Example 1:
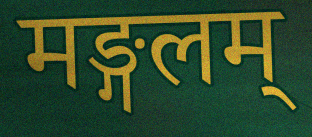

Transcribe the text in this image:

मङ्गलम्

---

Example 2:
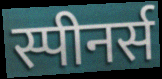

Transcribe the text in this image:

स्पीनर्स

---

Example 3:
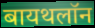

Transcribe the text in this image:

बायथलॉन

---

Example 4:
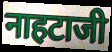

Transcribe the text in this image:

नाहटाजी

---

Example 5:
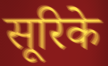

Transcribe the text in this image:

सूरिके